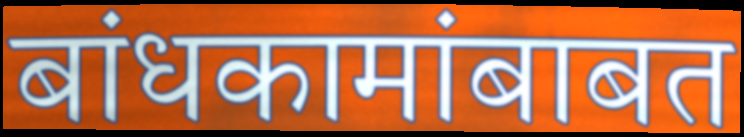
बांधकामांबाबत